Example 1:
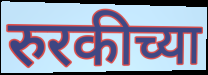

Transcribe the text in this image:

रुरकीच्या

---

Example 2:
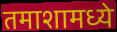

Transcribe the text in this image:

तमाशामध्ये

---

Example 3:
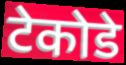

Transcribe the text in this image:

टेकोडे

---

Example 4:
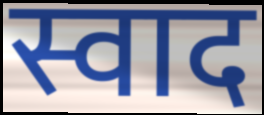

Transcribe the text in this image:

स्वाद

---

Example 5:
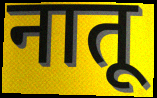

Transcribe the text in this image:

नातू